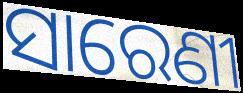
ସାରେଣୀ